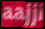
aajji